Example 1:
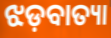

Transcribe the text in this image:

ଝଡ଼ବାତ୍ୟା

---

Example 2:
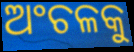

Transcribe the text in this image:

ଅଂଚଳକୁ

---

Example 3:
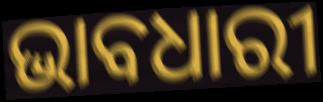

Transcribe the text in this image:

ଭାବଧାରୀ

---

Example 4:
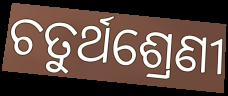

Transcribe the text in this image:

ଚତୁର୍ଥଶ୍ରେଣୀ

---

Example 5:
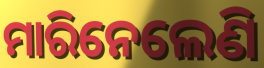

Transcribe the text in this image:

ମାରିନେଲେଣି